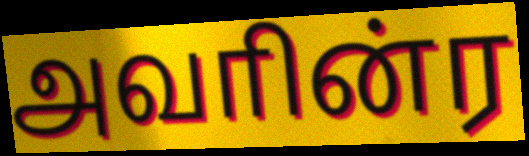
அவரின்ர